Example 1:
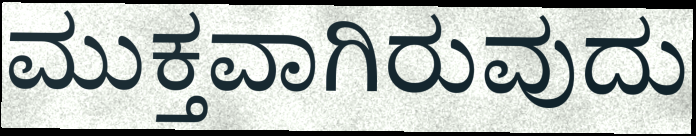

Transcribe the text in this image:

ಮುಕ್ತವಾಗಿರುವುದು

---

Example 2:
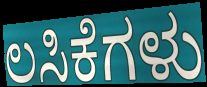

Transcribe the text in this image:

ಲಸಿಕೆಗಳು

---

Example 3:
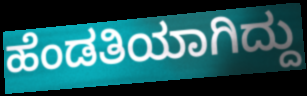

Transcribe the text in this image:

ಹೆಂಡತಿಯಾಗಿದ್ದು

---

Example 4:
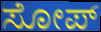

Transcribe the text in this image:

ಸೋಪ್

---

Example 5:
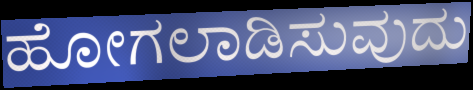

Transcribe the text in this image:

ಹೋಗಲಾಡಿಸುವುದು